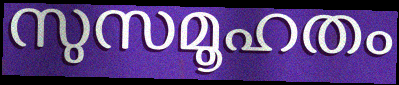
സുസമൂഹതം